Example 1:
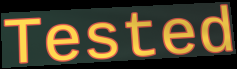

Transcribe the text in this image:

Tested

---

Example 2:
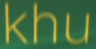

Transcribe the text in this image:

khu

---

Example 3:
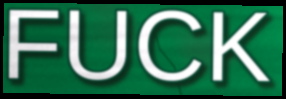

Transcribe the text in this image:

FUCK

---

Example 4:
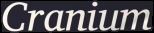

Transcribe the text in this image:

Cranium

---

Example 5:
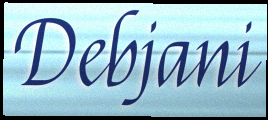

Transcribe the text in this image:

Debjani